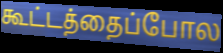
கூட்டத்தைப்போல